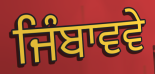
ਜਿੰਬਾਵਵੇ